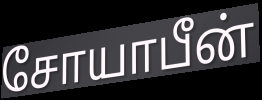
சோயாபீன்